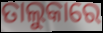
ତାଲୁକାରେ